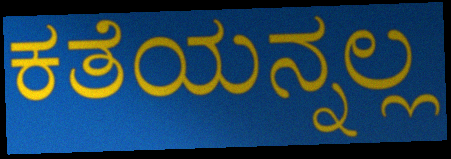
ಕತೆಯನ್ನಲ್ಲ